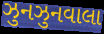
ઝુનઝુનવાલા